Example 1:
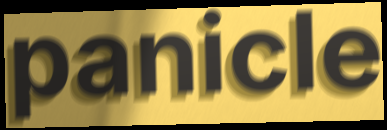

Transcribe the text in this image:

panicle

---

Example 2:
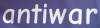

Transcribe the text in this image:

antiwar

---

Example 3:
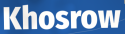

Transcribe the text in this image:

Khosrow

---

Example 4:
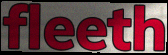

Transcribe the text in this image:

fleeth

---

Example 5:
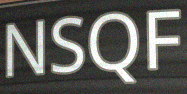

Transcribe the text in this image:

NSQF